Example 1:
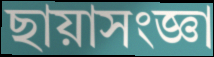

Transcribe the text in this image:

ছায়াসংজ্ঞা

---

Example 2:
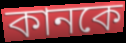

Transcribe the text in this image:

কানকে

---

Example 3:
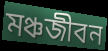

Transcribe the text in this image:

মঞ্চজীবন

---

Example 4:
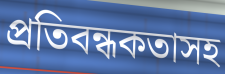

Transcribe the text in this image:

প্রতিবন্ধকতাসহ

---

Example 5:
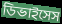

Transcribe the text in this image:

ডিভাইসেস